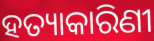
ହତ୍ୟାକାରିଣୀ